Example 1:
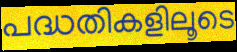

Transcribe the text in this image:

പദ്ധതികളിലൂടെ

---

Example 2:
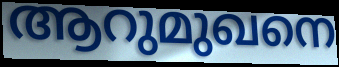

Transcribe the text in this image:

ആറുമുഖനെ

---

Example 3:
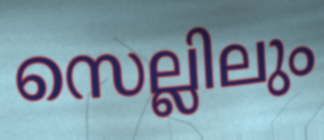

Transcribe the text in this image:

സെല്ലിലും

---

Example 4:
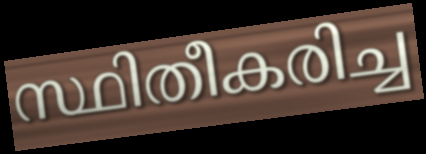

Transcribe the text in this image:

സ്ഥിതീകരിച്ച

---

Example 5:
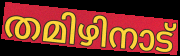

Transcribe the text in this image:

തമിഴിനാട്